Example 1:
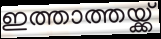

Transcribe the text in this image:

ഇത്താത്തയ്ക്ക്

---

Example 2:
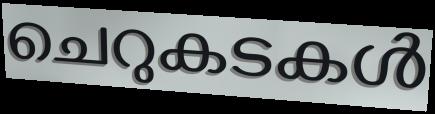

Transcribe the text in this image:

ചെറുകടകൾ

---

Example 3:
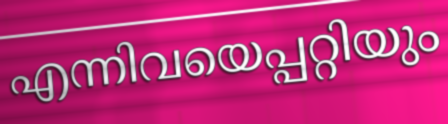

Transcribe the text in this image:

എന്നിവയെപ്പറ്റിയും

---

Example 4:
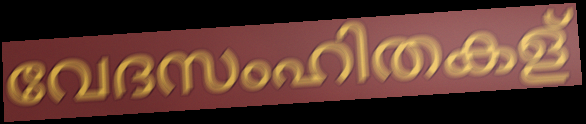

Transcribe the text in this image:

വേദസംഹിതകള്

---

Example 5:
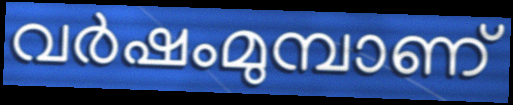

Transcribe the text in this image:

വർഷംമുമ്പാണ്